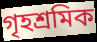
গৃহশ্রমিক